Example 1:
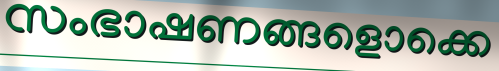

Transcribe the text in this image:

സംഭാഷണങ്ങളൊക്കെ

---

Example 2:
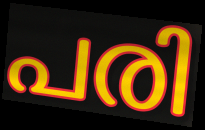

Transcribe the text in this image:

പരി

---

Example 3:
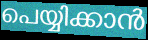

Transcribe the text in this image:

പെയ്യിക്കാൻ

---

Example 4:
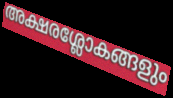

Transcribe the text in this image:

അക്ഷരശ്ലോകങ്ങളും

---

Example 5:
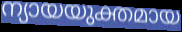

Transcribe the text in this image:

ന്യായയുക്തമായ